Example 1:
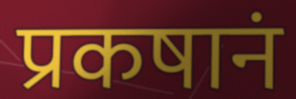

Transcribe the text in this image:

प्रकषानं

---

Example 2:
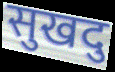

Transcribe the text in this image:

सुखदु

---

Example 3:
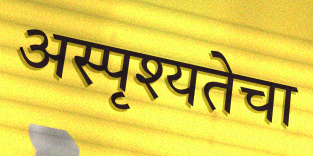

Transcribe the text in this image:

अस्पृश्यतेचा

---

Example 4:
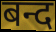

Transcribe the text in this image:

बन्द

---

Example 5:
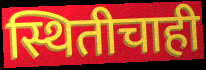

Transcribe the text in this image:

स्थितीचाही